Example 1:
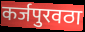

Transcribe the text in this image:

कर्जपुरवठा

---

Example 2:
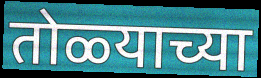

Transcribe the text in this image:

तोळ्याच्या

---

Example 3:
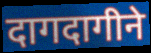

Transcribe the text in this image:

दागदागीने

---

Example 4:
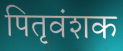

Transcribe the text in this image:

पितृवंशक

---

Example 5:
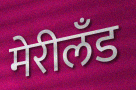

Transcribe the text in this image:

मेरीलँड